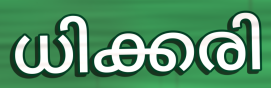
ധിക്കരി